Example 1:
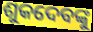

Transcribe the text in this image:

ଶୁକଦେବଙ୍କୁ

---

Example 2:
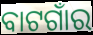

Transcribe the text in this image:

ବାଟଗାଁର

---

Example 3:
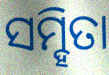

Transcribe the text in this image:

ସମ୍ହିତା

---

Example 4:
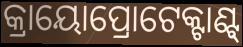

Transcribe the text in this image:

କ୍ରାୟୋପ୍ରୋଟେକ୍ଟାଣ୍ଟ୍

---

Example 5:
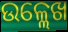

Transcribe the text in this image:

ଉଳ୍ଲେଖ